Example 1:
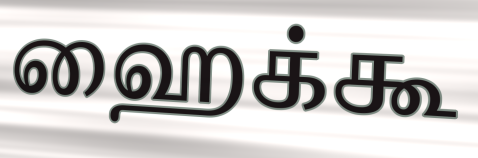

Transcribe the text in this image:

ஹைக்கூ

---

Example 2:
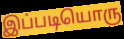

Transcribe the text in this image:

இப்படியொரு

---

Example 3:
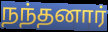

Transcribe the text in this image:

நந்தனார்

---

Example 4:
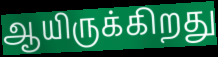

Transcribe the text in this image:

ஆயிருக்கிறது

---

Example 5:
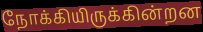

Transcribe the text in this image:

நோக்கியிருக்கின்றன